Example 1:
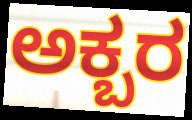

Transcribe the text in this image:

ಅಕ್ಬರ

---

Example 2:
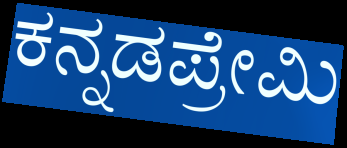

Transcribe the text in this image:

ಕನ್ನಡಪ್ರೇಮಿ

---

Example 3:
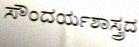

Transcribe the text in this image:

ಸೌಂದರ್ಯಶಾಸ್ತ್ರದ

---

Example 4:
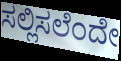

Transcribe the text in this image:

ಸಲ್ಲಿಸಲೆಂದೇ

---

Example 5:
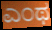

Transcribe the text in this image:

ಎಂಥ